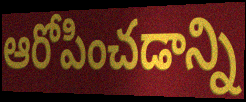
ఆరోపించడాన్ని